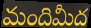
మందిమీద